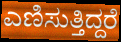
ಎಣಿಸುತ್ತಿದ್ದರೆ